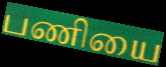
பணியை